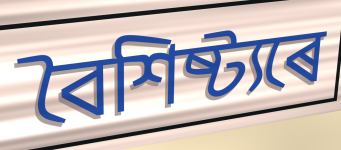
বৈশিষ্ট্যৰে